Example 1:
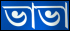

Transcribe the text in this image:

ভাভা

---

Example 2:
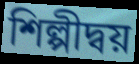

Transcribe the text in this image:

শিল্পীদ্বয়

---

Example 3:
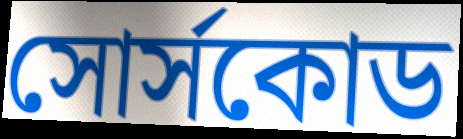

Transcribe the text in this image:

সোর্সকোড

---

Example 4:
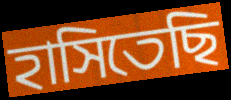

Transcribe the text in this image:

হাসিতেছি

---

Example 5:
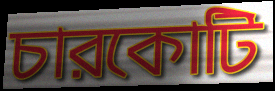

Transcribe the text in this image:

চারকোটি